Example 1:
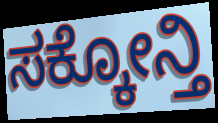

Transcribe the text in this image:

ಸಕ್ಕೋನ್ತಿ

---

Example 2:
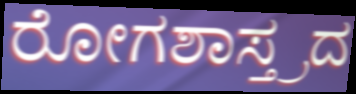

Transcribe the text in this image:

ರೋಗಶಾಸ್ತ್ರದ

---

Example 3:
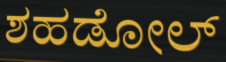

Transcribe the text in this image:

ಶಹಡೋಲ್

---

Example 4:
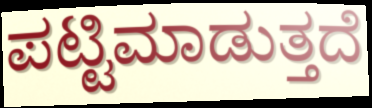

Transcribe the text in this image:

ಪಟ್ಟಿಮಾಡುತ್ತದೆ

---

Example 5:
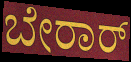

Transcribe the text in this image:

ಬೇರಾರ್